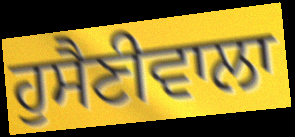
ਹੁਸੈਣੀਵਾਲਾ